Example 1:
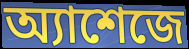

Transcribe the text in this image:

অ্যাশেজে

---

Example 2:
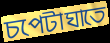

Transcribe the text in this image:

চপেটাঘাতে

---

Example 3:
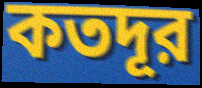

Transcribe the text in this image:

কতদূর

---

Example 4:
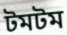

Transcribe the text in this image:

টমটম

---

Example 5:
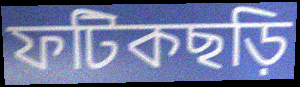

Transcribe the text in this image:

ফটিকছড়ি